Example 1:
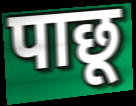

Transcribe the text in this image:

पाछू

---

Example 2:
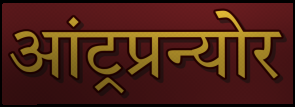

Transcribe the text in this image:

आंट्रप्रन्योर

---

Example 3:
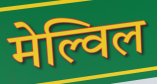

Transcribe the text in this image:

मेल्विल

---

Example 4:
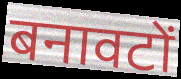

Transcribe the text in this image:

बनावटों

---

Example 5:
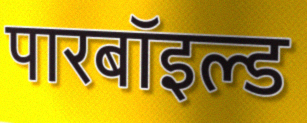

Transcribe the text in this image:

पारबॉइल्ड